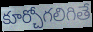
కూర్చోగలిగితే